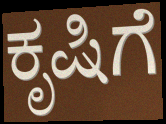
ಕೃಷಿಗೆ